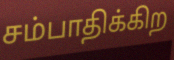
சம்பாதிக்கிற